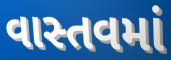
વાસ્તવમાં